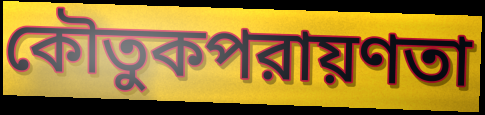
কৌতুকপরায়ণতা